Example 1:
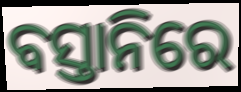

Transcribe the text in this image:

ବସ୍ତାନିରେ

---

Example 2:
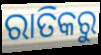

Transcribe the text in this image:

ରାତିକରୁ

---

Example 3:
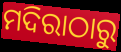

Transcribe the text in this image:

ମଦିରାଠାରୁ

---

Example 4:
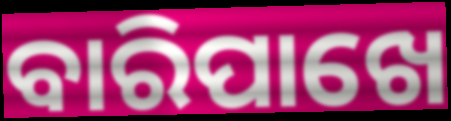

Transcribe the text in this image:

ବାରିପାଖେ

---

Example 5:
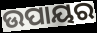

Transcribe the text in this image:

ଉପାୟର